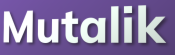
Mutalik